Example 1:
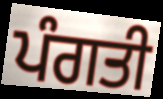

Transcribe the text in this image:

ਪੰਗਤੀ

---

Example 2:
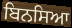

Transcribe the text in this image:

ਬਿਨਸਿਆ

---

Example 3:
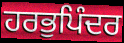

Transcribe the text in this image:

ਹਰਭੁਪਿੰਦਰ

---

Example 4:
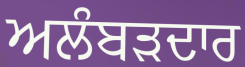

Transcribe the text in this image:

ਅਲੰਬੜਦਾਰ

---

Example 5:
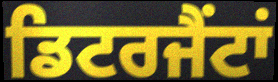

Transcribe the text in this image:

ਡਿਟਰਜੈਂਟਾਂ